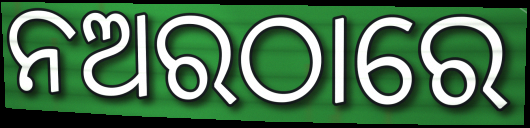
ନଅରଠାରେ